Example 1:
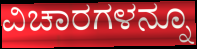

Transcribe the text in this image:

ವಿಚಾರಗಳನ್ನೂ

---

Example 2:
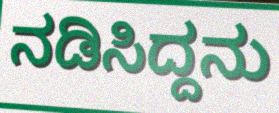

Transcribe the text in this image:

ನಡಿಸಿದ್ದನು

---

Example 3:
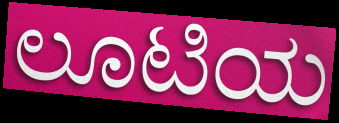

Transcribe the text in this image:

ಲೂಟಿಯ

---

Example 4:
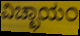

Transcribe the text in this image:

ವಿಚ್ಛಾಯಂ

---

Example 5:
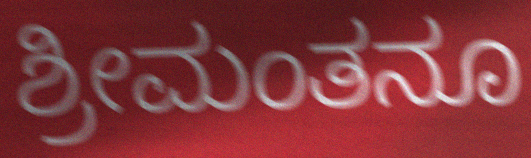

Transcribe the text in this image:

ಶ್ರೀಮಂತನೂ